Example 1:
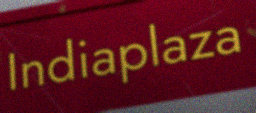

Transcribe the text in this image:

Indiaplaza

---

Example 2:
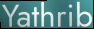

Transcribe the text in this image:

Yathrib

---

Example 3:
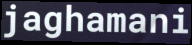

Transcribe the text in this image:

jaghamani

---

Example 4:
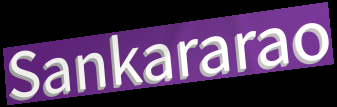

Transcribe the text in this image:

Sankararao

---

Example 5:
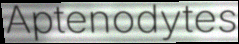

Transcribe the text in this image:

Aptenodytes